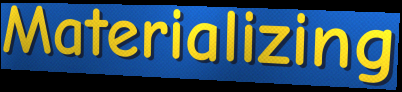
Materializing